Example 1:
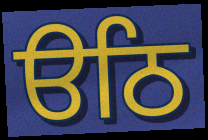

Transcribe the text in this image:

ੳਠਿ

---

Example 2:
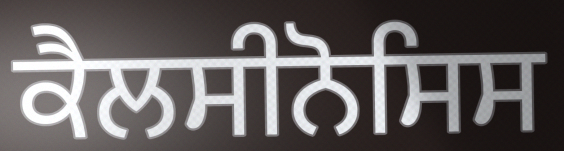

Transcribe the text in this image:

ਕੈਲਸੀਨੋਸਿਸ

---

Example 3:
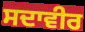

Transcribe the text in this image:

ਸਦਾਵੀਰ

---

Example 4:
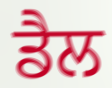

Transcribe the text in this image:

ਡੈਲ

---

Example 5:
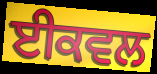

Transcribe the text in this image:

ਈਕਵਲ